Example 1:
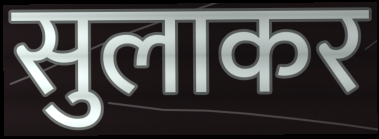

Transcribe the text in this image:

सुलाकर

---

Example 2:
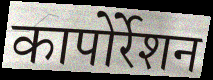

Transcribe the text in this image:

कापोर्रेशन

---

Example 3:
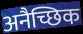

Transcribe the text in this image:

अनैच्छिक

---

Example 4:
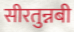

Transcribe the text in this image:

सीरतुन्नबी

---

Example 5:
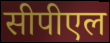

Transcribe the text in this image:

सीपीएल